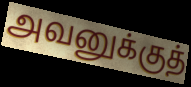
அவனுக்குத்